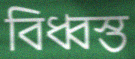
বিধ্বস্ত